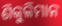
ଶିକୁଳିମାନ